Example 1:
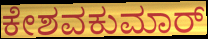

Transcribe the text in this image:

ಕೇಶವಕುಮಾರ್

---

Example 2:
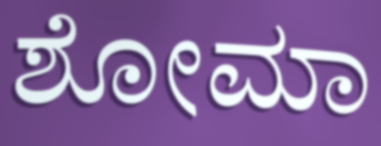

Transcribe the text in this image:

ಶೋಮಾ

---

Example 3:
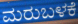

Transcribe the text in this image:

ಮರುಬಳಕೆ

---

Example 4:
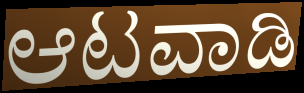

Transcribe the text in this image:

ಆಟವಾಡಿ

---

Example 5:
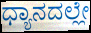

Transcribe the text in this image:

ಧ್ಯಾನದಲ್ಲೇ